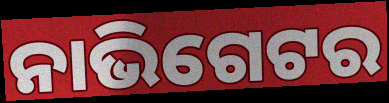
ନାଭିଗେଟର